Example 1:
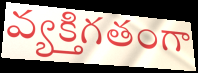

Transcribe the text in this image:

వ్యక్తిగతంగా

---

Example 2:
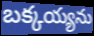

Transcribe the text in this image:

బక్కయ్యను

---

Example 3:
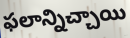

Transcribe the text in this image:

ఫలాన్నిచ్చాయి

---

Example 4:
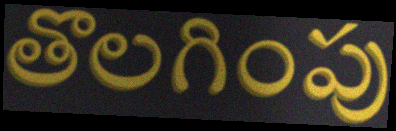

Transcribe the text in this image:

తొలగింపు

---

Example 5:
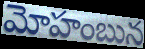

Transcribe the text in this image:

మోహంబున